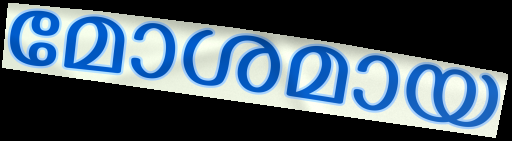
മോശമായ